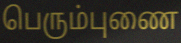
பெரும்புணை